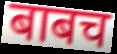
बाबच